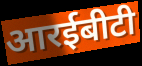
आरईबीटी